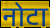
नोटा